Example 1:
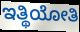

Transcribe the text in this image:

ಇತ್ಥಿಯೋತಿ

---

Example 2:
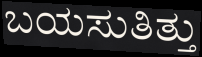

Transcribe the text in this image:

ಬಯಸುತಿತ್ತು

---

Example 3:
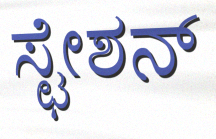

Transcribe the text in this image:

ಸ್ಟೇಶನ್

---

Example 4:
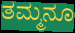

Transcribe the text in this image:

ತಮ್ಮನೂ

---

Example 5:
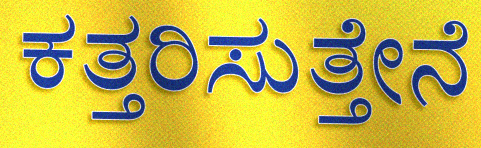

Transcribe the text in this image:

ಕತ್ತರಿಸುತ್ತೇನೆ